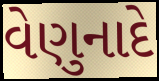
વેણુનાદે